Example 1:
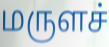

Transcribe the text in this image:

மருளச்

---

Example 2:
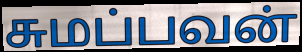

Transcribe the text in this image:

சுமப்பவன்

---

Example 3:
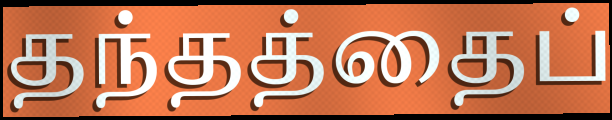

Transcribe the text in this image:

தந்தத்தைப்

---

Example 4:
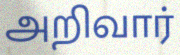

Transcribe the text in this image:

அறிவார்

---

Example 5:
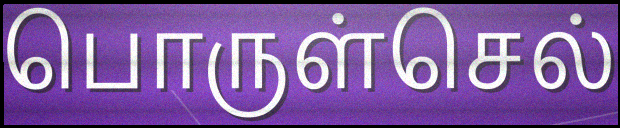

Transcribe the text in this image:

பொருள்செல்